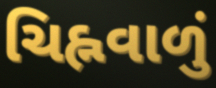
ચિહ્નવાળું